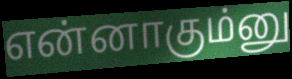
என்னாகும்னு